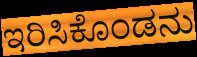
ಇರಿಸಿಕೊಂಡನು